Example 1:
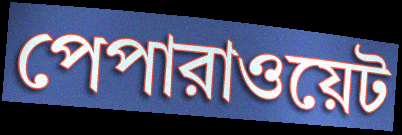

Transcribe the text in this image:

পেপারাওয়েট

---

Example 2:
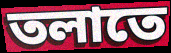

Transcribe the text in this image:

তলাতে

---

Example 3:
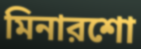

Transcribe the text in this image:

মিনারশো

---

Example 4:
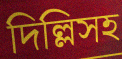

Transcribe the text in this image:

দিল্লিসহ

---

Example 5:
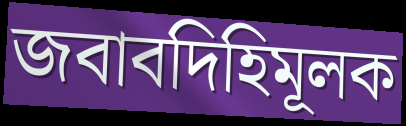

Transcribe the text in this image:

জবাবদিহিমূলক